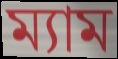
ম্যাম